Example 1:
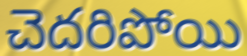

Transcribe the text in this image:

చెదరిపోయి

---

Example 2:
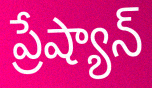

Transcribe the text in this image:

ప్రేష్యాన్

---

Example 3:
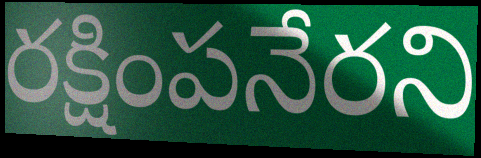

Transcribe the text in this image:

రక్షింపనేరని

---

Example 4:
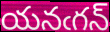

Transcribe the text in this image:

యనఁగన్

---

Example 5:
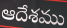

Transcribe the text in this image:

ఆదేశము